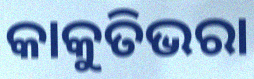
କାକୁତିଭରା